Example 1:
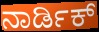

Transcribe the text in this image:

ನಾರ್ಡಿಕ್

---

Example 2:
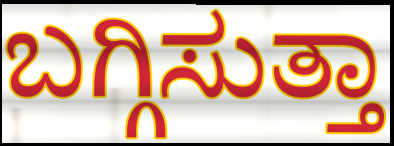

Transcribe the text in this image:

ಬಗ್ಗಿಸುತ್ತಾ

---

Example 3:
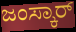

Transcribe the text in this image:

ಜಂಸ್ಕಾರ್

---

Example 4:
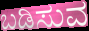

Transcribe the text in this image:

ಬಡಿಸುವ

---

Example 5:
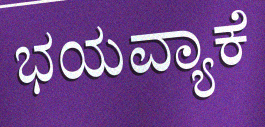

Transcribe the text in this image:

ಭಯವ್ಯಾಕೆ